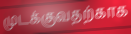
முடக்குவதற்காக